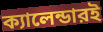
ক্যালেন্ডারই